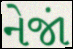
નેજાં